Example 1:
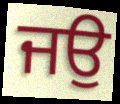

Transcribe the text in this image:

ਜਉ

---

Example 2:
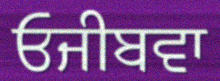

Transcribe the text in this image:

ਓਜੀਬਵਾ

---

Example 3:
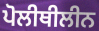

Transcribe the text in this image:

ਪੋਲੀਥੀਲੀਨ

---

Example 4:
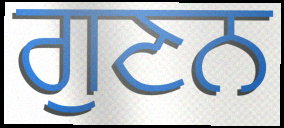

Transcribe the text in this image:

ਗੁਣਨ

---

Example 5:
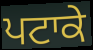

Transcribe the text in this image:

ਪਟਾਕੇ